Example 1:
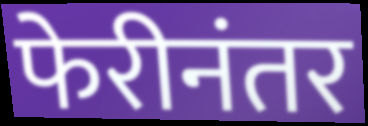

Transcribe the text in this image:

फेरीनंतर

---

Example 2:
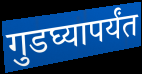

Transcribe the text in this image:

गुडघ्यापर्यंत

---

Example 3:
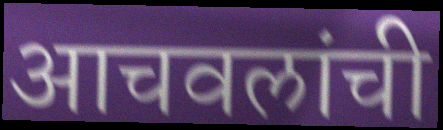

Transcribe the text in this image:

आचवलांची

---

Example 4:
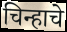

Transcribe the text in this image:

चिन्हाचे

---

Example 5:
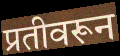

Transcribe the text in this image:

प्रतीवरून